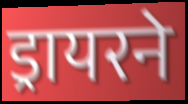
ड्रायरने